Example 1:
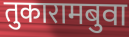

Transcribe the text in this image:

तुकारामबुवा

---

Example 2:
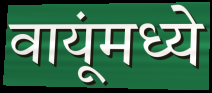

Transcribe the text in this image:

वायूंमध्ये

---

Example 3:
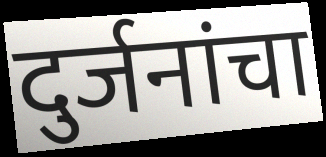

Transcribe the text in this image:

दुर्जनांचा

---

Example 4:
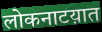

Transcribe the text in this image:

लोकनाटय़ात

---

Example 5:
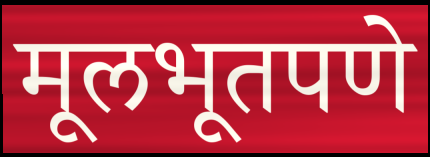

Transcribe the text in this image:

मूलभूतपणे